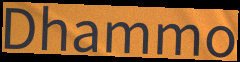
Dhammo